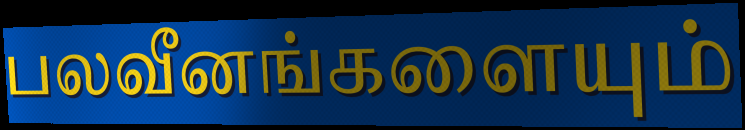
பலவீனங்களையும்